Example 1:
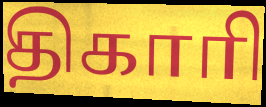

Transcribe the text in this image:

திகாரி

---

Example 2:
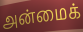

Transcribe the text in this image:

அன்மைக்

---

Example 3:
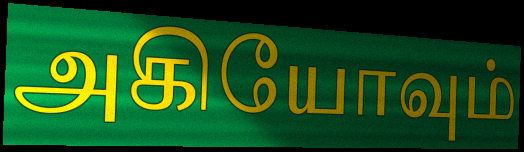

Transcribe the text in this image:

அகியோவும்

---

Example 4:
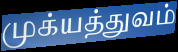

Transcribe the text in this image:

முக்யத்துவம்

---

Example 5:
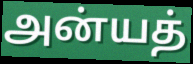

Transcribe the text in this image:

அன்யத்